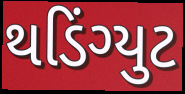
થડિંગ્યુટ